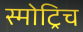
स्मोट्रिच